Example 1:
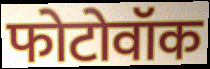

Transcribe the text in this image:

फोटोवॉक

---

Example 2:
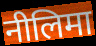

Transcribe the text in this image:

नीलिमा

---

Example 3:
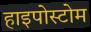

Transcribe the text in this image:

हाइपोस्टोम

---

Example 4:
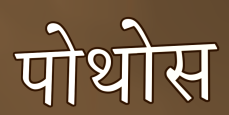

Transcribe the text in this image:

पोथोस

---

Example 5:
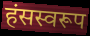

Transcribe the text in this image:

हंसस्वरूप